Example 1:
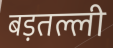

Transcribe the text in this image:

बड़तल्ली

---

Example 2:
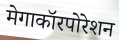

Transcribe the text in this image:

मेगाकॉरपोरेशन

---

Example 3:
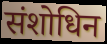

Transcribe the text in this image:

संशोधिन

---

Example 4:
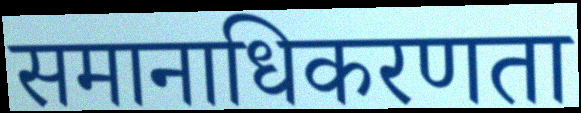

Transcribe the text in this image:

समानाधिकरणता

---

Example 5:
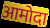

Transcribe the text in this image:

आमोदा